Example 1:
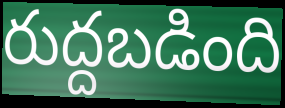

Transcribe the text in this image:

రుద్దబడింది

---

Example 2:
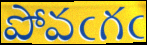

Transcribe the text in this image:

పోవఁగఁ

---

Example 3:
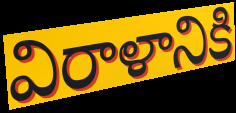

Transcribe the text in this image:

విరాళానికి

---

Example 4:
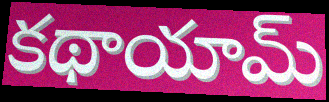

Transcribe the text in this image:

కథాయామ్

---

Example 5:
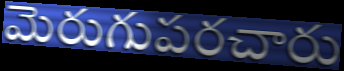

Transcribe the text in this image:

మెరుగుపరచారు